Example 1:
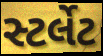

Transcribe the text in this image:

સ્ટર્લેટ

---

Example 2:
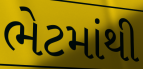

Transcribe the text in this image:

ભેટમાંથી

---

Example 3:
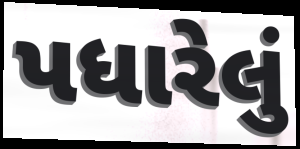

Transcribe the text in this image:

પધારેલું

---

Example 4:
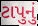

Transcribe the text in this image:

ટાપુનું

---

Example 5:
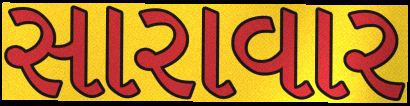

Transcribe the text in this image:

સારાવાર